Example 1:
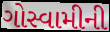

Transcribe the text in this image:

ગોસ્વામીની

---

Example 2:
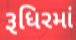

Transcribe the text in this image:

રૂધિરમાં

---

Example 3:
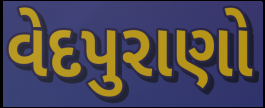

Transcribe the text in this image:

વેદપુરાણો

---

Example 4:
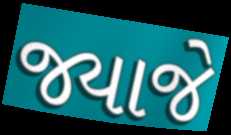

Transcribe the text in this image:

જ્યાજે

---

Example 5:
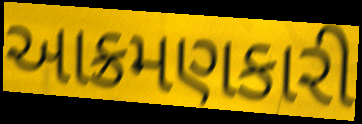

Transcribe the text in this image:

આક્રમણકારી